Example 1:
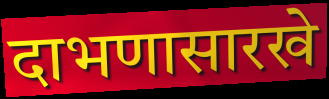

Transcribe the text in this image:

दाभणासारखे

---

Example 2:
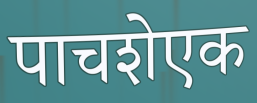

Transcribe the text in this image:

पाचशेएक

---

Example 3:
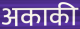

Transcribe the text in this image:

अकाकी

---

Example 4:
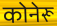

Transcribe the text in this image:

कोनेरू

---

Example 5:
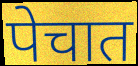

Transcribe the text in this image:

पेचात